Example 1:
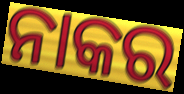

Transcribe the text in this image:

ନାକର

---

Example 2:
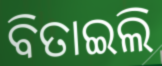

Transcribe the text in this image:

ବିତାଇଲି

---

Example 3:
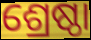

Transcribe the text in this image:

ଶ୍ରେଷ୍ଠା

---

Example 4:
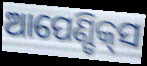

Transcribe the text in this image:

ଆପେଣ୍ଡିକ୍‌ସ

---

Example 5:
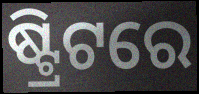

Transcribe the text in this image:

ଷ୍ଟ୍ରିଟରେ